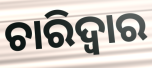
ଚାରିଦ୍ୱାର